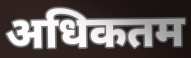
अधिकतम